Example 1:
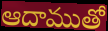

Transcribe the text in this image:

ఆదాముతో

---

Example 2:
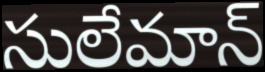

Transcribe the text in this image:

సులేమాన్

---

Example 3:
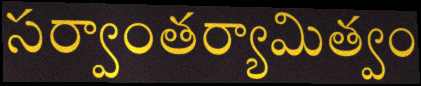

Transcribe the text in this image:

సర్వాంతర్యామిత్వం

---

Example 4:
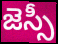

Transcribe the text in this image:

జెస్సీ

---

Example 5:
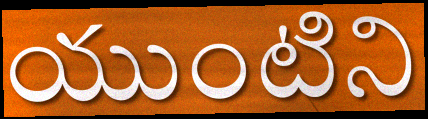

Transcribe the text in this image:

యుంటిని